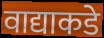
वाद्याकडे